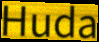
Huda